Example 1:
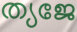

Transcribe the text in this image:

ത്യജേ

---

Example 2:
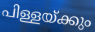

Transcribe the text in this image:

പിള്ളയ്ക്കും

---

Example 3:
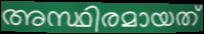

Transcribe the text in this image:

അസ്ഥിരമായത്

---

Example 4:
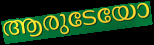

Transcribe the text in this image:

ആരുടേയോ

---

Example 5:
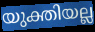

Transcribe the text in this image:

യുക്തിയല്ല